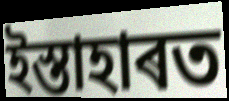
ইস্তাহাৰত